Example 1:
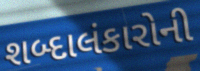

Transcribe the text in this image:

શબ્દાલંકારોની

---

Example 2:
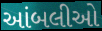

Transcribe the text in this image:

આંબલીઓ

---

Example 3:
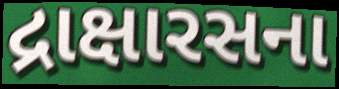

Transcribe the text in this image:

દ્રાક્ષારસના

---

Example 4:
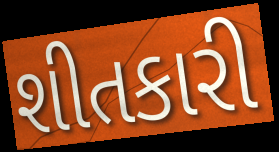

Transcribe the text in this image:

શીતકારી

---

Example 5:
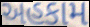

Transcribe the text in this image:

અહકામ